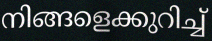
നിങ്ങളെക്കുറിച്ച്